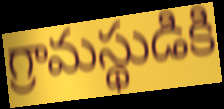
గ్రామస్థుడికి